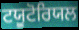
ਟਯੂਟੋਰਿਯਲ